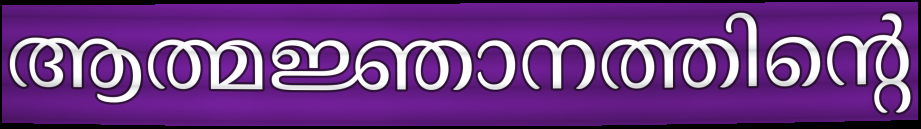
ആത്മജ്ഞാനത്തിന്റെ